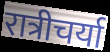
रात्रीचर्या